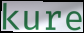
kure